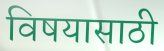
विषयासाठी